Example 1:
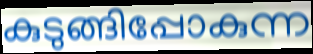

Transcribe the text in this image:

കുടുങ്ങിപ്പോകുന്ന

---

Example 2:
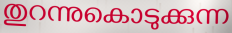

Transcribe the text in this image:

തുറന്നുകൊടുക്കുന്ന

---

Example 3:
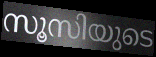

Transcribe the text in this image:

സൂസിയുടെ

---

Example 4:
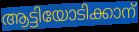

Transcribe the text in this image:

ആട്ടിയോടിക്കാന്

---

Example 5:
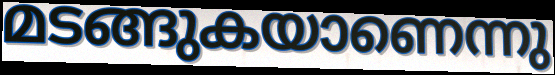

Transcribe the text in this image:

മടങ്ങുകയാണെന്നു